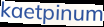
kaetpinum